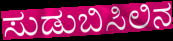
ಸುಡುಬಿಸಿಲಿನ